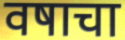
वषाचा